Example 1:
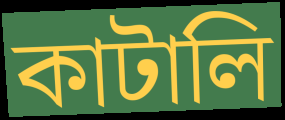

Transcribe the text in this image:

কাটালি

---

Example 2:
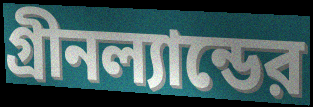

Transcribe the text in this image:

গ্রীনল্যান্ডের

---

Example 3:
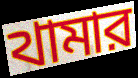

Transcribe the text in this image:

থামার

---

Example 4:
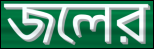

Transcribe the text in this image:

জলের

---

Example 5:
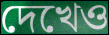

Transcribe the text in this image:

দেখেও